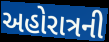
અહોરાત્રની